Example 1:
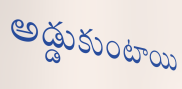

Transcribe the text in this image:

అడ్డుకుంటాయి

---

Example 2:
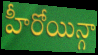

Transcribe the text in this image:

హీరోయిన్గా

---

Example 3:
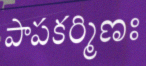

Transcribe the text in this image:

పాపకర్మిణః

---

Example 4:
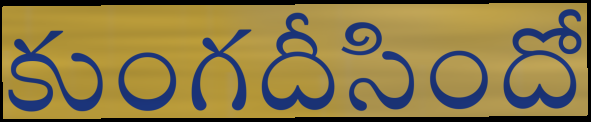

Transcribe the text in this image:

కుంగదీసిందో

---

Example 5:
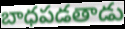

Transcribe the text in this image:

బాధపడతాడు